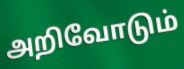
அறிவோடும்